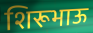
शिरूभाऊ